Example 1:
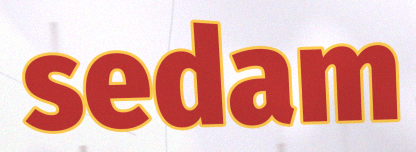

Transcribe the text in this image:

sedam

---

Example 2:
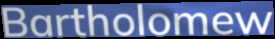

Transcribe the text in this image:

Bartholomew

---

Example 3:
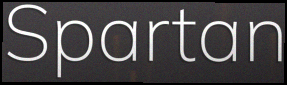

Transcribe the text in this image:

Spartan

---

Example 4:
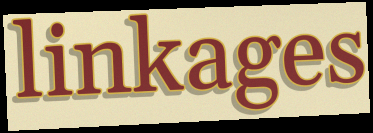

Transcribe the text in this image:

linkages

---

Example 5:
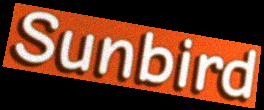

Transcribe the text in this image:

Sunbird